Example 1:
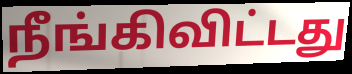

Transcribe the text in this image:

நீங்கிவிட்டது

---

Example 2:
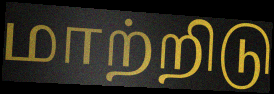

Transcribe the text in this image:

மாற்றிடு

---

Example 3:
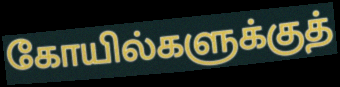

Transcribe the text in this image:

கோயில்களுக்குத்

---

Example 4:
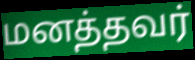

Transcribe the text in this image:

மனத்தவர்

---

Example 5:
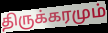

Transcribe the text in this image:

திருக்கரமும்